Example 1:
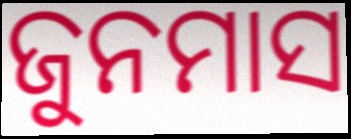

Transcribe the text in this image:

ଜୁନମାସ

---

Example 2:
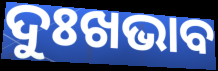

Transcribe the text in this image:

ଦୁଃଖଭାବ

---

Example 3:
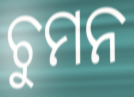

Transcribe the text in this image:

ଚୁମନ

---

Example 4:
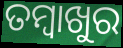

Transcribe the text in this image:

ତମ୍ବାଖୁର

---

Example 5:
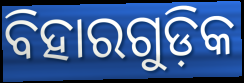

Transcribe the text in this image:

ବିହାରଗୁଡ଼ିକ